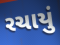
રચાયું